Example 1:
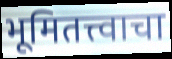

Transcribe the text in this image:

भूमितत्त्वाचा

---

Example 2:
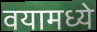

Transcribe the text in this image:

वयामध्ये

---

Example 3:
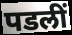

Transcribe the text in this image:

पडलीं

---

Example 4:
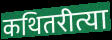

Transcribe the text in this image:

कथितरीत्या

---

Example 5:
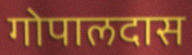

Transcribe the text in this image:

गोपालदास